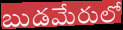
బుడమేరులో